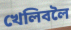
খেলিবলৈ